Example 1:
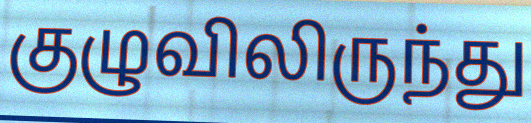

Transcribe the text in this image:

குழுவிலிருந்து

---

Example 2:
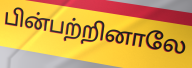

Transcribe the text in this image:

பின்பற்றினாலே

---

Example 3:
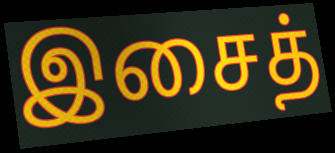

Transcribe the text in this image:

இசைத்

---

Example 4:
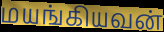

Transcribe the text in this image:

மயங்கியவன்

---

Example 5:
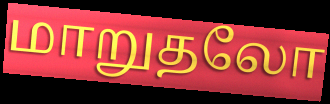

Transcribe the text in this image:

மாறுதலோ